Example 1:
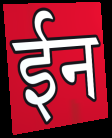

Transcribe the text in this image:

ईन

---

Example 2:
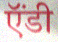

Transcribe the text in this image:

ऍंडी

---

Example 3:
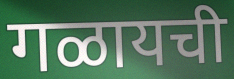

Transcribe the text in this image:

गळायची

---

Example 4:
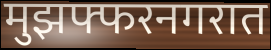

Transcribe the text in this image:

मुझफ्फरनगरात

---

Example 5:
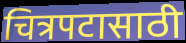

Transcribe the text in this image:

चित्रपटासाठी